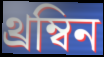
থ্রম্বিন